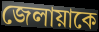
জেলায়াকে